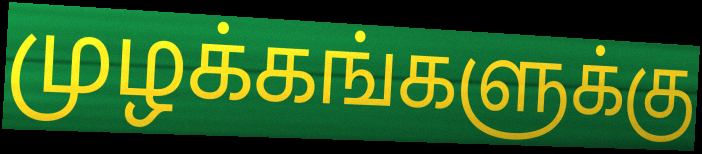
முழக்கங்களுக்கு